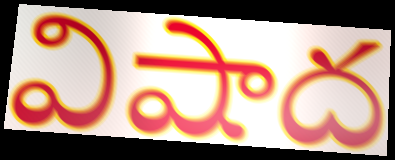
విషాద